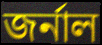
জৰ্নাল